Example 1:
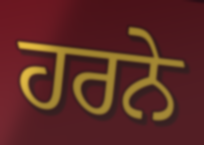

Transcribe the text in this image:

ਹਰਨੇ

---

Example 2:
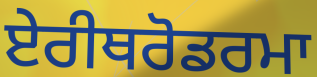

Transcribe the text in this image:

ਏਰੀਥਰੋਡਰਮਾ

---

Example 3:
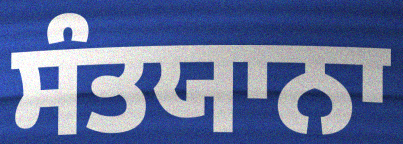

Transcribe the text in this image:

ਸੰਤਯਾਨਾ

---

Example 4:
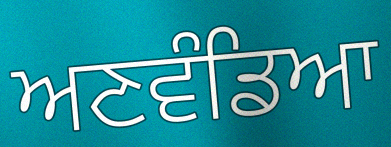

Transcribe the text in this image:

ਅਣਵੰਡਿਆ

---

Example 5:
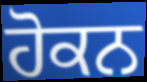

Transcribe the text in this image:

ਹੋਕਨ